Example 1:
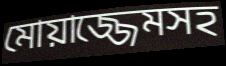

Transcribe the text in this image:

মোয়াজ্জেমসহ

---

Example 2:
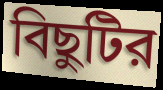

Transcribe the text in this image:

বিছুটির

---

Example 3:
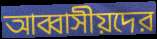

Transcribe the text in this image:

আব্বাসীয়দের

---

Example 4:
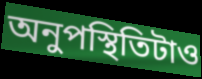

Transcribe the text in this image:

অনুপস্থিতিটাও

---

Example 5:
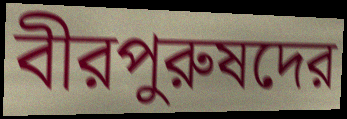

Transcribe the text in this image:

বীরপুরুষদের